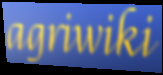
agriwiki